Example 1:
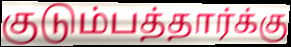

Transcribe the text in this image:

குடும்பத்தார்க்கு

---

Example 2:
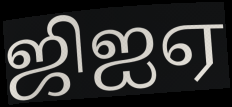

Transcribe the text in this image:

ஜிஐஏ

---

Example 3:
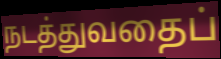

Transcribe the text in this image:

நடத்துவதைப்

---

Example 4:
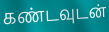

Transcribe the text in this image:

கண்டவுடன்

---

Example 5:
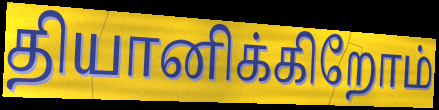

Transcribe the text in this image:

தியானிக்கிறோம்